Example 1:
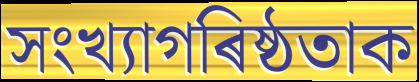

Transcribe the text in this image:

সংখ্যাগৰিষ্ঠতাক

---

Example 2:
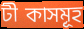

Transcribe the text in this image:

টীকাসমূহ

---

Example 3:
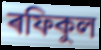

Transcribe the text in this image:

ৰফিকুল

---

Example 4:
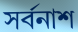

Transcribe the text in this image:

সৰ্বনাশ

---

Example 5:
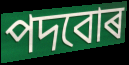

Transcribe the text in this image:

পদবোৰ